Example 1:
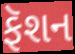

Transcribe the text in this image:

ફૅશન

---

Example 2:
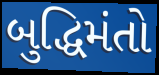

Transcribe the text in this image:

બુદ્ધિમંતો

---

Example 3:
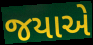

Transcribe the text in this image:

જયાએ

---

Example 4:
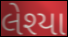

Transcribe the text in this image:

લેશ્યા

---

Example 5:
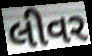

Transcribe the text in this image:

લીવર